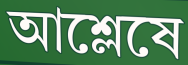
আশ্লেষে